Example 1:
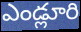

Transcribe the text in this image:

ఎండ్లూరి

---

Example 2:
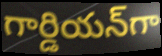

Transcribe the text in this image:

గార్డియన్‌గా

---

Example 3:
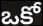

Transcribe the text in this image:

ఒకో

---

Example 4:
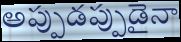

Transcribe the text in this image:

అప్పుడప్పుడైనా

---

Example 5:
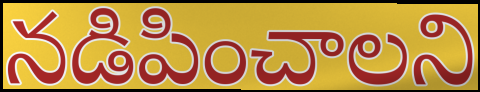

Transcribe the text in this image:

నడిపించాలని